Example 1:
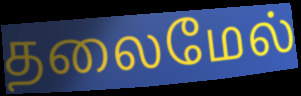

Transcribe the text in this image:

தலைமேல்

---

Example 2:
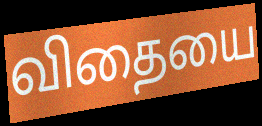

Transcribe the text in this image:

விதையை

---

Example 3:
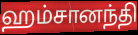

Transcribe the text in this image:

ஹம்சானந்தி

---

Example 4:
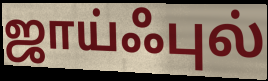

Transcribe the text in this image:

ஜாய்ஃபுல்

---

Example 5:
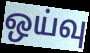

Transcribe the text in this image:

ஒய்வு